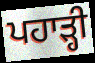
ਪਹਾੜ੍ਹੀ